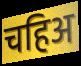
चहिअ